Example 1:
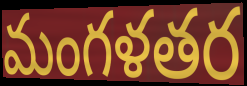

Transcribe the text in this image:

మంగళతర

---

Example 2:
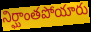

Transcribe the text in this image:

నిర్ఘాంతపోయారు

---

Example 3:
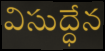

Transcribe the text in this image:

విసుద్ధేన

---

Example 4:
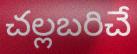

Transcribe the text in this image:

చల్లబరిచే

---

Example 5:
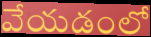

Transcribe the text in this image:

వేయడంలో